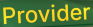
Provider